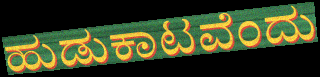
ಹುಡುಕಾಟವೆಂದು